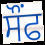
ਸੌਂਫ